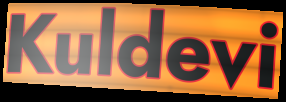
Kuldevi